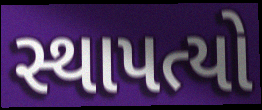
સ્થાપત્યો